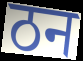
ठन